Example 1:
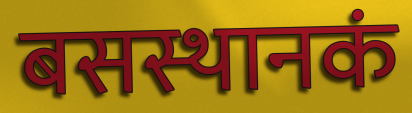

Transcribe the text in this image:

बसस्थानकं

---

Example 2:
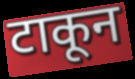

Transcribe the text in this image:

टाकून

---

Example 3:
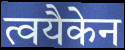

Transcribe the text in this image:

त्वयैकेन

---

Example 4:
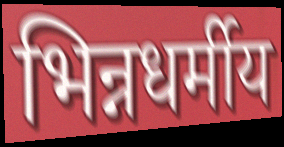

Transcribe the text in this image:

भिन्नधर्मीय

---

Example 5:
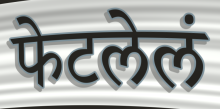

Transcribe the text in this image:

फेटलेलं